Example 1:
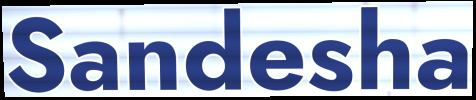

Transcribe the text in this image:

Sandesha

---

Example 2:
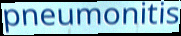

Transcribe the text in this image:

pneumonitis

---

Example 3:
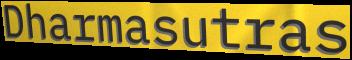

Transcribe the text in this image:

Dharmasutras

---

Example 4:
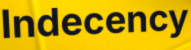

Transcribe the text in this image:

Indecency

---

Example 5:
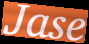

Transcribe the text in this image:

Jase